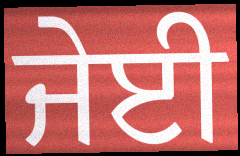
ਜੇਈ